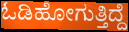
ಓಡಿಹೋಗುತ್ತಿದ್ದೆ